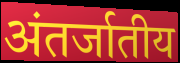
अंतर्जातीय